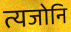
त्यजोनि